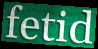
fetid